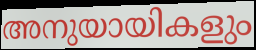
അനുയായികളും